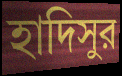
হাদিসুর